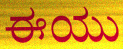
ಈಯು